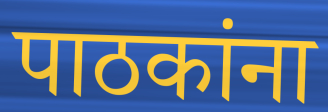
पाठकांना